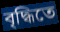
বৃদ্ধিতে